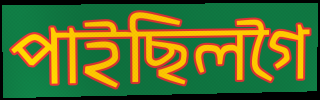
পাইছিলগৈ